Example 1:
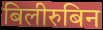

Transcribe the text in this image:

बिलीरुबिन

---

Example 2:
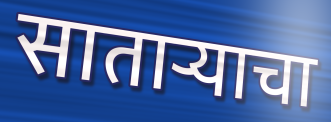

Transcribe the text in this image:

साताऱ्याचा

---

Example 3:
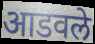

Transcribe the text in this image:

आडवले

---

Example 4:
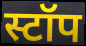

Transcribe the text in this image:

स्टॉप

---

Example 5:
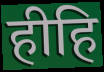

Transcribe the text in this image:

हीहि